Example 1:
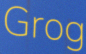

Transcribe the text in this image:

Grog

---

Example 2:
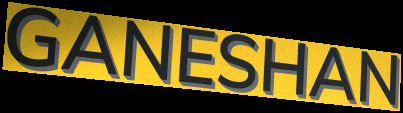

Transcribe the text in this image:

GANESHAN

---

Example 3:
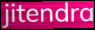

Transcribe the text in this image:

jitendra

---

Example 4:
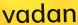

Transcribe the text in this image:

vadan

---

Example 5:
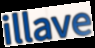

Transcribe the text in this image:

illave